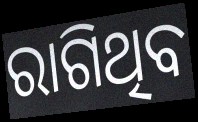
ରାଗିଥିବ